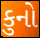
કુનો